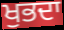
ਖੁਭਦਾ